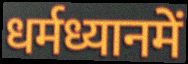
धर्मध्यानमें